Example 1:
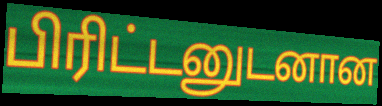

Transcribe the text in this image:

பிரிட்டனுடனான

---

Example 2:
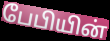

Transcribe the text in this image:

பேபியின்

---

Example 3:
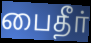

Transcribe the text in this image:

பைதீர்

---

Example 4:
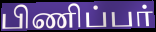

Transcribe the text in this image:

பிணிப்பர்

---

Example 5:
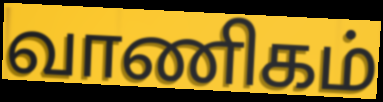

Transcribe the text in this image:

வாணிகம்